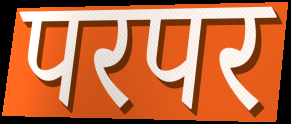
परपर